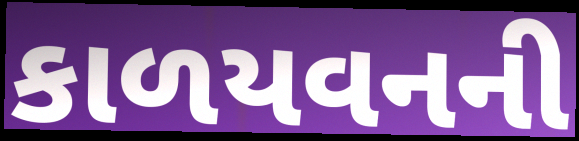
કાળયવનની